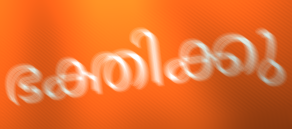
ഭക്തിക്കു